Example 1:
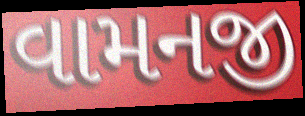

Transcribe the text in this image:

વામનજી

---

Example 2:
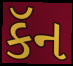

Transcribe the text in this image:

કૅન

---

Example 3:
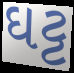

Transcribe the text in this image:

ઘટ્ટ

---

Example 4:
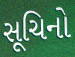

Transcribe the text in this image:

સૂચિનો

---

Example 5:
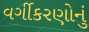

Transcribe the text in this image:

વર્ગીકરણોનું